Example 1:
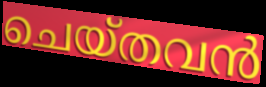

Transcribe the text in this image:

ചെയ്തവൻ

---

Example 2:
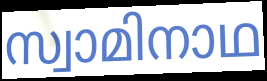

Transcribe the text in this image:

സ്വാമിനാഥ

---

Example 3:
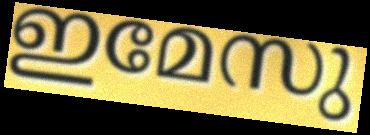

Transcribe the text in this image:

ഇമേസു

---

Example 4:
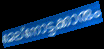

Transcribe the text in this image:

മേല്നോട്ടക്കാരും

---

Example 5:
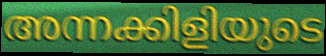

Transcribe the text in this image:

അന്നക്കിളിയുടെ